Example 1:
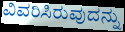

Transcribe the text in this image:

ವಿವರಿಸಿರುವುದನ್ನು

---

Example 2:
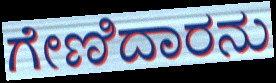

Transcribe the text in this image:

ಗೇಣಿದಾರನು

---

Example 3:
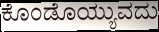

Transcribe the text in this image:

ಕೊಂಡೊಯ್ಯುವದು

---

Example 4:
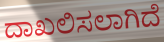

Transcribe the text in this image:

ದಾಖಲಿಸಲಾಗಿದೆ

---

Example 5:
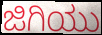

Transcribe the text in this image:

ಜಿಗಿಯು